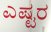
ಎಷ್ಟರ